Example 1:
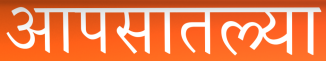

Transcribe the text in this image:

आपसातल्या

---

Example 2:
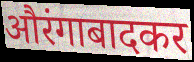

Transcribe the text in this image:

औरंगाबादकर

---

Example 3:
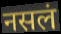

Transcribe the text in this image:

नसलं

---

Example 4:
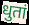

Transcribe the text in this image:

धुतां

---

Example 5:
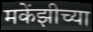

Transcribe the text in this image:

मकेंझीच्या